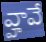
వ్హావే